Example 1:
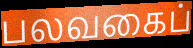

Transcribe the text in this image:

பலவகைப்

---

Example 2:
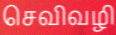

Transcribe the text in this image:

செவிவழி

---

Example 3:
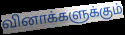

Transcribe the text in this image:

வினாக்களுக்கும்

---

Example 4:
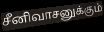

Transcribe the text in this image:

சீனிவாசனுக்கும்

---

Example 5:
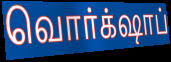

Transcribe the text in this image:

வொர்க்‌ஷாப்